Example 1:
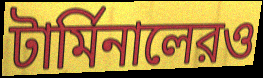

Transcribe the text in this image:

টার্মিনালেরও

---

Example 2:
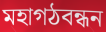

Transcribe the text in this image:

মহাগঠবন্ধন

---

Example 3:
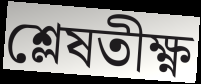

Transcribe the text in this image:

শ্লেষতীক্ষ্ণ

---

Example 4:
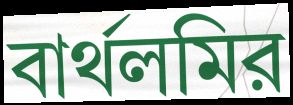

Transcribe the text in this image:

বার্থলমির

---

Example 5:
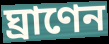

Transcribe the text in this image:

ঘ্রাণেন